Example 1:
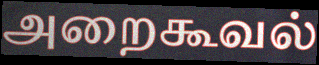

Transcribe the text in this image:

அறைகூவல்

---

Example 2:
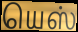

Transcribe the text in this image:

யெஸ்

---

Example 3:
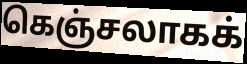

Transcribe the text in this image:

கெஞ்சலாகக்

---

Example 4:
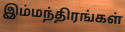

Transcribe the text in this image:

இம்மந்திரங்கள்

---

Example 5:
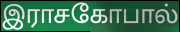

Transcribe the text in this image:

இராசகோபால்